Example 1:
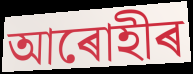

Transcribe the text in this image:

আৰোহীৰ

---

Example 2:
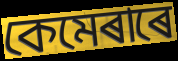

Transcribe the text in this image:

কেমেৰাৰে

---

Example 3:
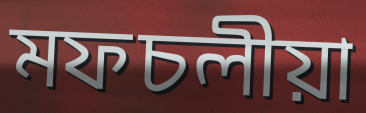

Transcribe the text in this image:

মফচলীয়া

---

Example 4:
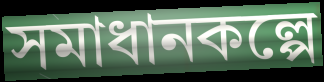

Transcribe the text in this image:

সমাধানকল্পে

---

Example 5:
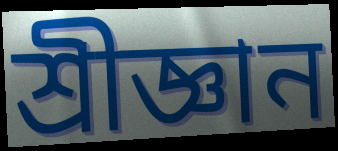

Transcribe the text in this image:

শ্ৰীজ্ঞান